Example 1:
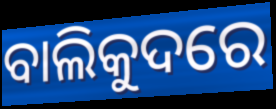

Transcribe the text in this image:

ବାଲିକୁଦରେ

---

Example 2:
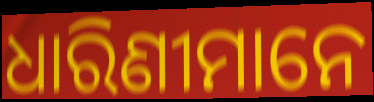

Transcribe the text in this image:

ଧାରିଣୀମାନେ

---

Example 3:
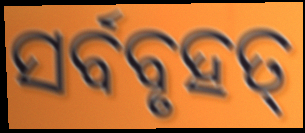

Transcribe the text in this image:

ସର୍ବବୃହତ୍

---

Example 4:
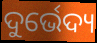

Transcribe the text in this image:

ଦୁର୍ଭେଦ୍ୟ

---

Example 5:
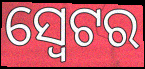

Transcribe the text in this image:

ସ୍ଵେଟର